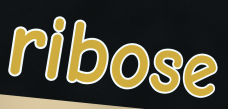
ribose